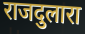
राजदुलारा